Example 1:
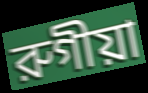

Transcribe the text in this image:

ৰুগীয়া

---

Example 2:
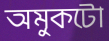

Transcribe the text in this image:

অমুকটো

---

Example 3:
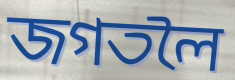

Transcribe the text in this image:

জগতলৈ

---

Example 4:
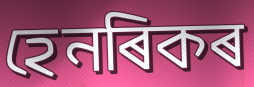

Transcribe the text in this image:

হেনৰিকৰ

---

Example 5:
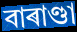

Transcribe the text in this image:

বাৰাণ্ডা